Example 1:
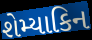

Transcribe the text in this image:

શેમ્યાકિન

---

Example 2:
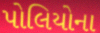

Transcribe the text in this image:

પોલિયોના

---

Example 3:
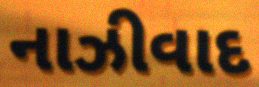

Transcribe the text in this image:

નાઝીવાદ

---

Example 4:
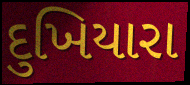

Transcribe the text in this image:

દુખિયારા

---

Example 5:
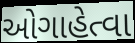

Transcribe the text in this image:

ઓગાહેત્વા